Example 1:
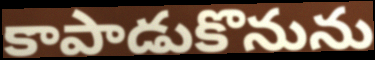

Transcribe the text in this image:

కాపాడుకొనును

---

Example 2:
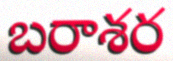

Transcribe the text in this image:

బరాశర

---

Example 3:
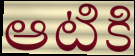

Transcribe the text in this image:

ఆటికి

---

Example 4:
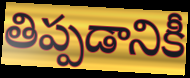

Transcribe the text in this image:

తిప్పడానికీ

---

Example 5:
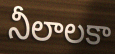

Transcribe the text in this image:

నీలాలకా